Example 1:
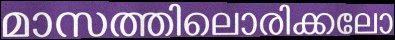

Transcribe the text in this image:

മാസത്തിലൊരിക്കലോ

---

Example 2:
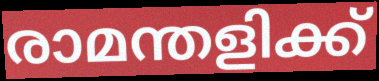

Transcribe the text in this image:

രാമന്തളിക്ക്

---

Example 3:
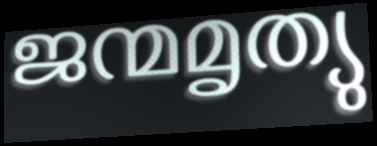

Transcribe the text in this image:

ജന്മമൃത്യു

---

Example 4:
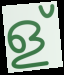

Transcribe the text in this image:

ള്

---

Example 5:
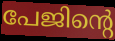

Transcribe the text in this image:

പേജിന്റെ